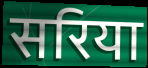
सरिया